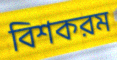
বিশকরম